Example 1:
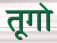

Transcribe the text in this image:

तूगो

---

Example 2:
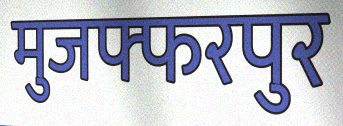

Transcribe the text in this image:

मुजफ्फरपुर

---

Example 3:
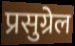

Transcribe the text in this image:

प्रसुग्रेल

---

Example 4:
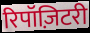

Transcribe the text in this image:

रिपॉज़िटरी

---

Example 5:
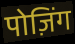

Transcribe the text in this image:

पोज़िंग